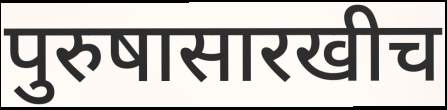
पुरुषासारखीच